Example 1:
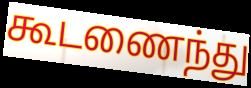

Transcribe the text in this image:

கூடணைந்து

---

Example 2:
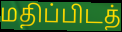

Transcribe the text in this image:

மதிப்பிடத்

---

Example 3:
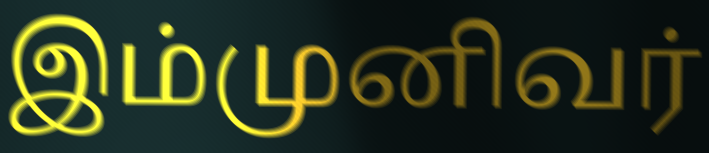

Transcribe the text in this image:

இம்முனிவர்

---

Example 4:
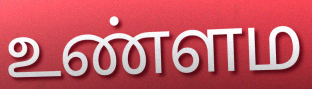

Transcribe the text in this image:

உண்ளம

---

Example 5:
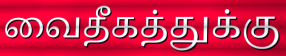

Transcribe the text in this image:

வைதீகத்துக்கு